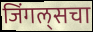
जिंगल्सचा